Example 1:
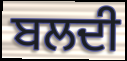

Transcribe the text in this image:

ਬਲਦੀ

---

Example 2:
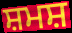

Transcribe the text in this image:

ਸ਼ਮਸ਼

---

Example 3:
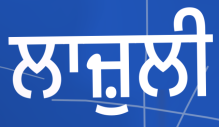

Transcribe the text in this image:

ਲਾਜ਼ੁਲੀ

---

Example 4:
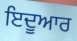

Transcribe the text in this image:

ਇਦੂਆਰ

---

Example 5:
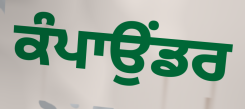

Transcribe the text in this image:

ਕੰਪਾਉਂਡਰ